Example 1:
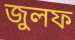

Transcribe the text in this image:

জুলফ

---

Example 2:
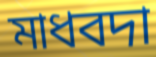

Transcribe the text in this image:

মাধবদা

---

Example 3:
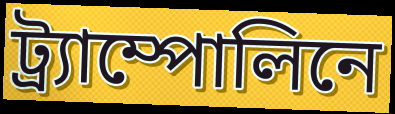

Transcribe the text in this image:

ট্র্যাম্পোলিনে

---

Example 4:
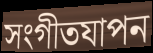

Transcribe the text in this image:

সংগীতযাপন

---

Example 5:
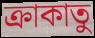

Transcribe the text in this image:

ক্রাকাতু